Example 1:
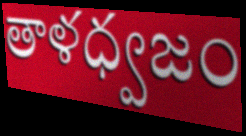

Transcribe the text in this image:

తాళధ్వజం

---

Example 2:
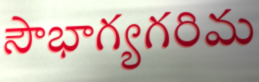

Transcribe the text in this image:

సౌభాగ్యగరిమ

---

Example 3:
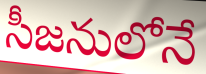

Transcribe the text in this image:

సీజనులోనే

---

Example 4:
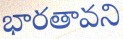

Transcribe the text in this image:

భారతావని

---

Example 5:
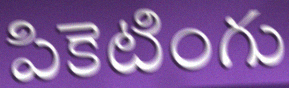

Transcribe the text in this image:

పికెటింగు